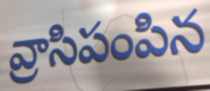
వ్రాసిపంపిన